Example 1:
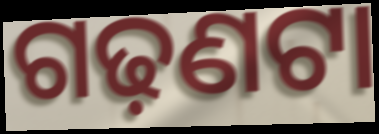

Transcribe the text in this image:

ଗଢ଼ଣଟା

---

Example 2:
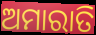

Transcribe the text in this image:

ଅମାରାତି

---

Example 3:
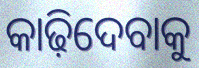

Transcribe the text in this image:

କାଢ଼ିଦେବାକୁ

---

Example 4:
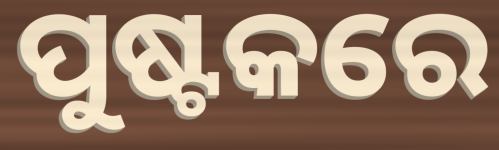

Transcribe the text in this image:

ପୁଷ୍ଟକରେ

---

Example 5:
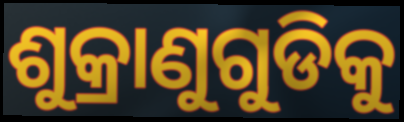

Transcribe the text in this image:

ଶୁକ୍ରାଣୁଗୁଡିକୁ